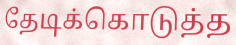
தேடிக்கொடுத்த